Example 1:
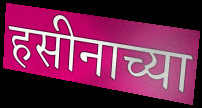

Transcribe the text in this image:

हसीनाच्या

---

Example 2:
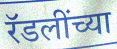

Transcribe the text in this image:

रॅडलींच्या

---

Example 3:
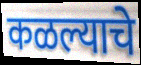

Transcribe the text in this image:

कळल्याचे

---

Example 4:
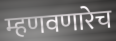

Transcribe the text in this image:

म्हणवणारेच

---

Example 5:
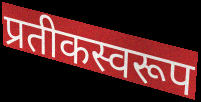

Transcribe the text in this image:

प्रतीकस्वरूप